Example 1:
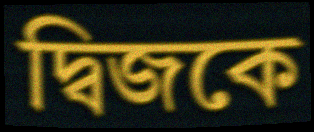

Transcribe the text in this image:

দ্বিজকে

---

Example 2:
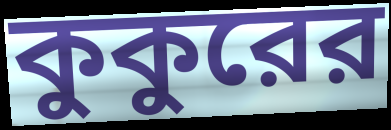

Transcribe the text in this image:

কুকুরের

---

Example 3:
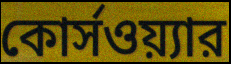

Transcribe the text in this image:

কোর্সওয়্যার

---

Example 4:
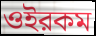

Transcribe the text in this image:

ওইরকম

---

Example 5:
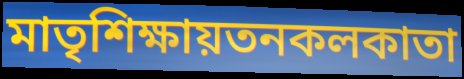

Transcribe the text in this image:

মাতৃশিক্ষায়তনকলকাতা